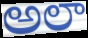
అలా